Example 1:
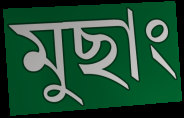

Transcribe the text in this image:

মুছাং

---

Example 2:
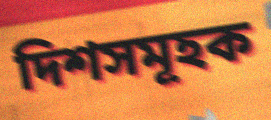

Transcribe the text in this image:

দিশসমূহক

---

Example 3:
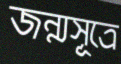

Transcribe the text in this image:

জন্মসূত্ৰে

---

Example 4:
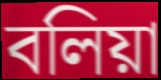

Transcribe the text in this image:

বলিয়া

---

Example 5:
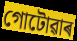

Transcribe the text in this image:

গোটোৱাৰ